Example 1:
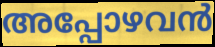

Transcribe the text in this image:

അപ്പോഴവൻ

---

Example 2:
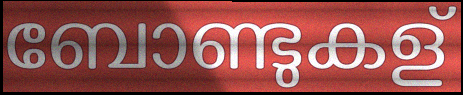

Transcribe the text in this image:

ബോണ്ടുകള്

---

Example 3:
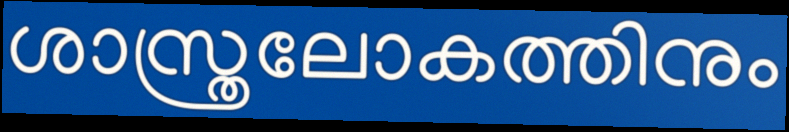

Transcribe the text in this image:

ശാസ്ത്രലോകത്തിനും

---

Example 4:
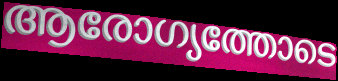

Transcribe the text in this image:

ആരോഗ്യത്തോടെ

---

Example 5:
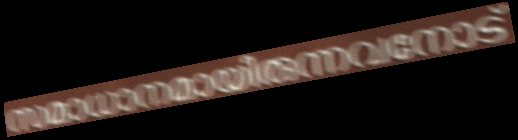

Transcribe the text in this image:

സമാധാനമായിരുന്നവനോട്